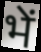
भें